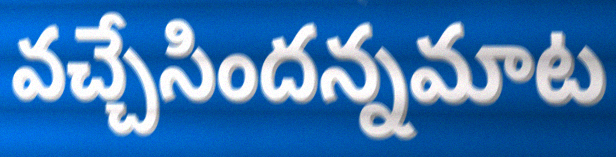
వచ్చేసిందన్నమాట